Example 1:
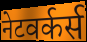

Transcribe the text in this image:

नेटवर्कर्स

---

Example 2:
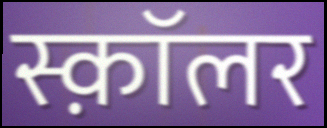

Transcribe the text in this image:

स्क़ॉलर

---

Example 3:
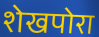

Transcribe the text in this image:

शेखपोरा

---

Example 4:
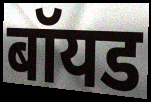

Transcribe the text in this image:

बॉयड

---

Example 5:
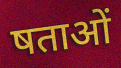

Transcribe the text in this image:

षताओं